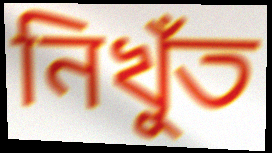
নিখুঁত